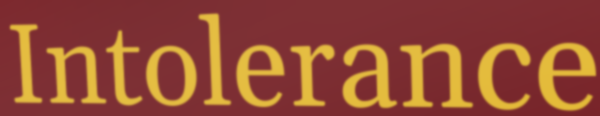
Intolerance